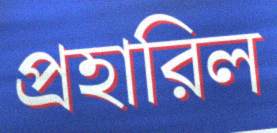
প্রহারিল